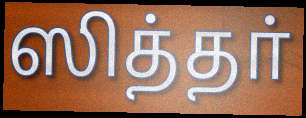
ஸித்தர்